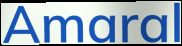
Amaral